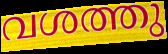
വശത്തു